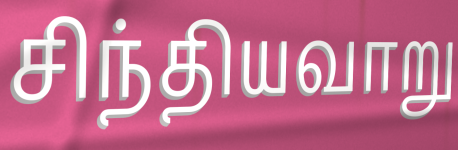
சிந்தியவாறு